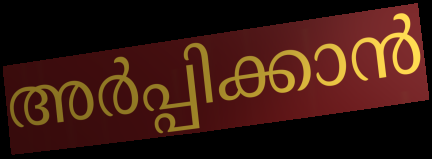
അർപ്പിക്കാൻ